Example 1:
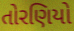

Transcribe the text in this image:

તોરણિયો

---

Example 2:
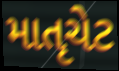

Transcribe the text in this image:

માતૃચેટ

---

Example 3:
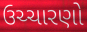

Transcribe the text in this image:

ઉચ્ચારણો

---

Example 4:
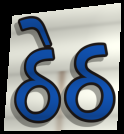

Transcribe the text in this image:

ઠેઠ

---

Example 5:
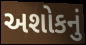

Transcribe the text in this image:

અશોકનું